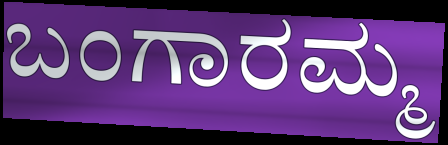
ಬಂಗಾರಮ್ಮ